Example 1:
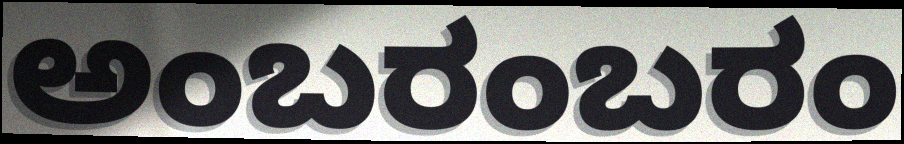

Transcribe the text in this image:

ಅಂಬರಂಬರಂ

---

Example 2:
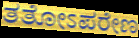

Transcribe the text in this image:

ತತೋಽಪರೇಣ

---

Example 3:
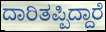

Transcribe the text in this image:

ದಾರಿತಪ್ಪಿದ್ದಾರೆ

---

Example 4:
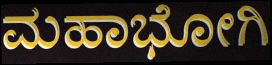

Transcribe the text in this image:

ಮಹಾಭೋಗಿ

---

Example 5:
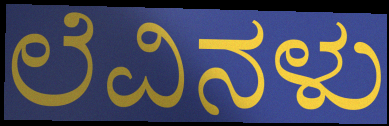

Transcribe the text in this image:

ಲೆವಿನಳು